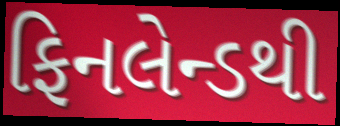
ફિનલેન્ડથી